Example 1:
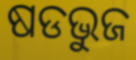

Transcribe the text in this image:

ଷଡଭୁଜ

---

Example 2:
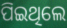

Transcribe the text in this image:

ପିଇଥିଲେ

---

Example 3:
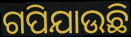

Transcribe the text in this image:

ଗପିଯାଉଛି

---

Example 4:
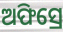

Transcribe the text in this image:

ଅଫିସ୍ରେ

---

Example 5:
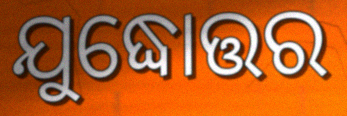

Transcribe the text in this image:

ଯୁଦ୍ଧୋତ୍ତର